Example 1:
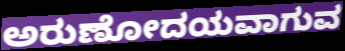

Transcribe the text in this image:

ಅರುಣೋದಯವಾಗುವ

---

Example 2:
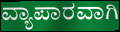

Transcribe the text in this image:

ವ್ಯಾಪಾರವಾಗಿ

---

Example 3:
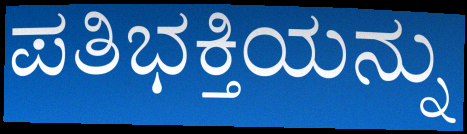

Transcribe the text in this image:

ಪತಿಭಕ್ತಿಯನ್ನು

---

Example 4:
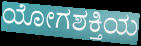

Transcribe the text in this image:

ಯೋಗಶಕ್ತಿಯ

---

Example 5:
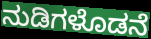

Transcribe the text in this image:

ನುಡಿಗಳೊಡನೆ